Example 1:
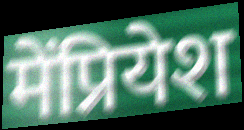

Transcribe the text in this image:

मेंप्रियेश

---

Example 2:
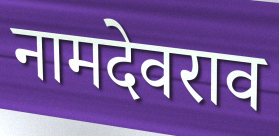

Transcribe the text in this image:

नामदेवराव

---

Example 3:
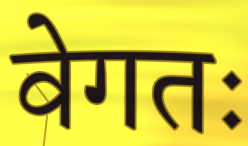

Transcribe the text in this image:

वेगतः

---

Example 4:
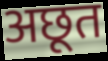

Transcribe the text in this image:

अछूत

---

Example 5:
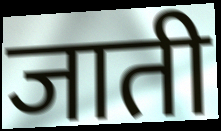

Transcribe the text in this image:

जाती